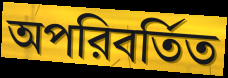
অপরিবর্তিত